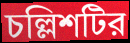
চল্লিশটির